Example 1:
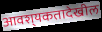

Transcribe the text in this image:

आवश्यकतादेखील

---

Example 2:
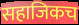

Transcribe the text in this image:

सहाजिकच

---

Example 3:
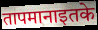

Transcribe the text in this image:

तापमानाइतके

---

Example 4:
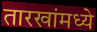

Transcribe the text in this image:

तारखांमध्ये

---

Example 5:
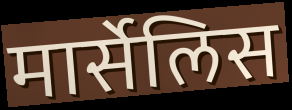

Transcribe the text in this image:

मार्सेलिस